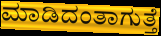
ಮಾಡಿದಂತಾಗುತ್ತೆ